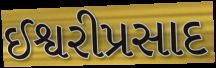
ઈશ્વરીપ્રસાદ